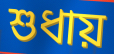
শুধায়